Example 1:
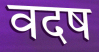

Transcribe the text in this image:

वदष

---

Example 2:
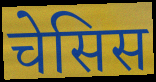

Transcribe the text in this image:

चेसिस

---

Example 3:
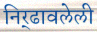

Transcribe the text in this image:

निर्ढावलेली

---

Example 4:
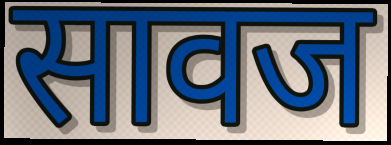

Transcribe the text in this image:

सावज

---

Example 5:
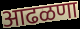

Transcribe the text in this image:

आढळणा